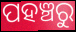
ପହଞ୍ଚରୁ